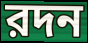
রদন